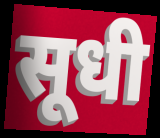
सूधी